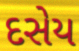
દસેય